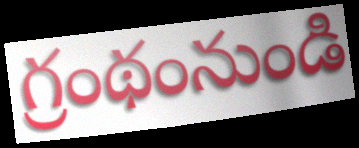
గ్రంథంనుండి